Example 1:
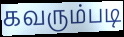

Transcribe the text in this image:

கவரும்படி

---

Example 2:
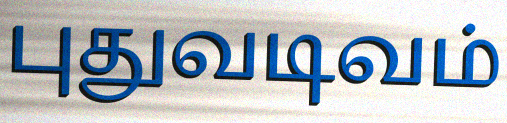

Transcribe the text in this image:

புதுவடிவம்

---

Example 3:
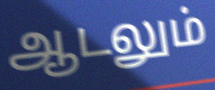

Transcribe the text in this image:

ஆடலும்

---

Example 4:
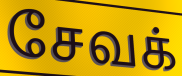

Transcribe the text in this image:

சேவக்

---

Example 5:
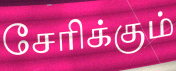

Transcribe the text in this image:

சேரிக்கும்